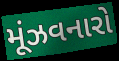
મૂંઝવનારો